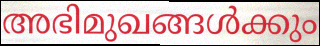
അഭിമുഖങ്ങൾക്കും